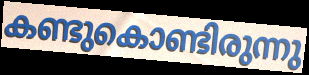
കണ്ടുകൊണ്ടിരുന്നു